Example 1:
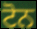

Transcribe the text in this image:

ਟੋਨ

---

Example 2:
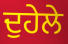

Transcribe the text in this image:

ਦੁਹੇਲੇ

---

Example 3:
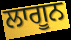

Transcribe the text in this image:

ਲਾਗੂਨ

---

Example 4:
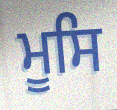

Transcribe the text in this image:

ਮੂਸਿ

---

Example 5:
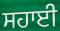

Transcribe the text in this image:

ਸਹਾਈ